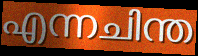
എന്നചിന്ത